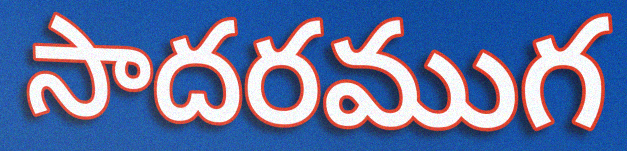
సాదరముగ